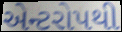
એન્ટરોપથી